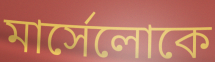
মার্সেলোকে